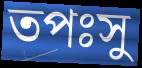
তপঃসু